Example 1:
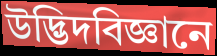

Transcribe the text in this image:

উদ্ভিদবিজ্ঞানে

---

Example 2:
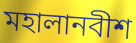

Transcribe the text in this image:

মহালানবীশ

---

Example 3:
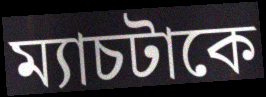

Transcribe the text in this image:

ম্যাচটাকে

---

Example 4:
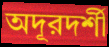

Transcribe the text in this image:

অদূরদর্শী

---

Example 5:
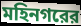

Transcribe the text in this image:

মহিনগরের